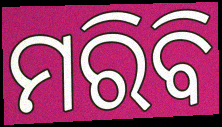
ମରିବି